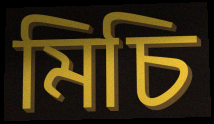
মিচি